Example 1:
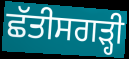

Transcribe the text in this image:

ਛੱਤੀਸਗੜ੍ਹੀ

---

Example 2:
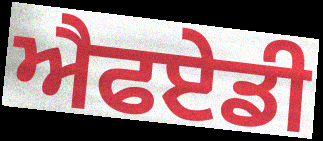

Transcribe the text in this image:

ਐਫਏਡੀ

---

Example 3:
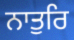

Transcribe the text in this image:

ਨਾਤੁਰਿ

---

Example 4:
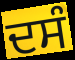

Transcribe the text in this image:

ਦਸੰ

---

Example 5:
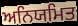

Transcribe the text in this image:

ਅਨਿਯਮਿਤ